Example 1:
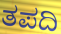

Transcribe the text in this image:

ತಪದಿ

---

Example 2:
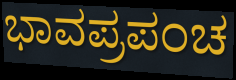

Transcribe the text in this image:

ಭಾವಪ್ರಪಂಚ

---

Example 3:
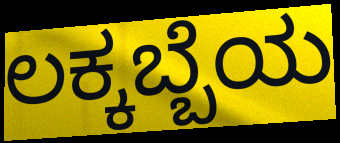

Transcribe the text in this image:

ಲಕ್ಕಬ್ಬೆಯ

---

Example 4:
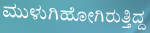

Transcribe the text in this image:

ಮುಳುಗಿಹೋಗಿರುತ್ತಿದ್ದ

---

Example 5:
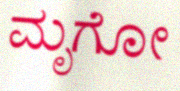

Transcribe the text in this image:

ಮೃಗೋ